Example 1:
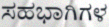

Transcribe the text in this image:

ಸಹಭಾಗಿಗಳ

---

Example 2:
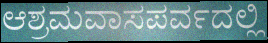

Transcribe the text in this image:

ಆಶ್ರಮವಾಸಪರ್ವದಲ್ಲಿ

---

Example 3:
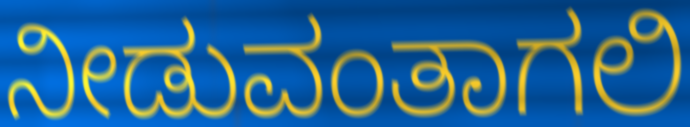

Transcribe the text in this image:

ನೀಡುವಂತಾಗಲಿ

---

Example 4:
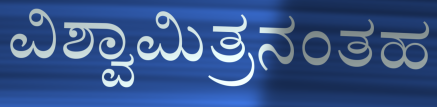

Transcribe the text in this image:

ವಿಶ್ವಾಮಿತ್ರನಂತಹ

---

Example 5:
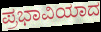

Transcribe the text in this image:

ಪ್ರಭಾವಿಯಾದ